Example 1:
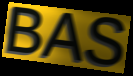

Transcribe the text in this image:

BAS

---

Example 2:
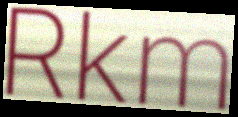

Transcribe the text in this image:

Rkm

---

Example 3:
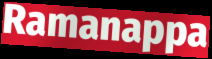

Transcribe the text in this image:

Ramanappa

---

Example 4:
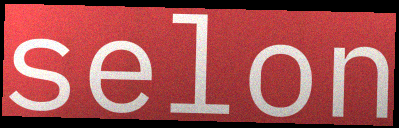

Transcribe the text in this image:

selon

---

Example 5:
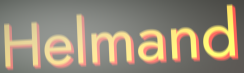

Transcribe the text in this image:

Helmand